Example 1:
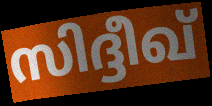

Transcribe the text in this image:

സിദ്ദീഖ്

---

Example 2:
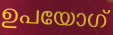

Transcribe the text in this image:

ഉപയോഗ്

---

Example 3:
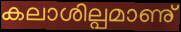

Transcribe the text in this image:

കലാശില്പമാണു്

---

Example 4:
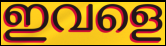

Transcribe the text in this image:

ഇവളെ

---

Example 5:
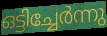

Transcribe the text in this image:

ഒട്ടിച്ചേർന്നു